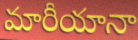
మారీయానా